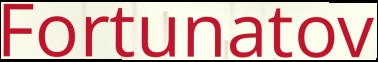
Fortunatov